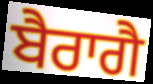
ਬੈਰਾਗੈ